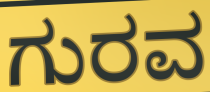
ಗುರವ